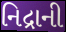
નિદ્રાની